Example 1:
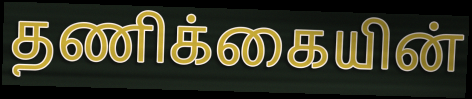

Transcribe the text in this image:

தணிக்கையின்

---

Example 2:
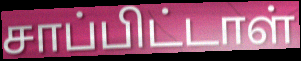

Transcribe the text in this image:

சாப்பிட்டாள்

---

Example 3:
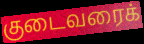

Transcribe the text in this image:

குடைவரைக்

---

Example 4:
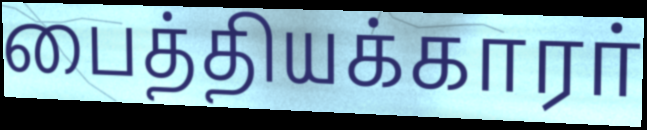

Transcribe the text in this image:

பைத்தியக்காரர்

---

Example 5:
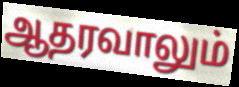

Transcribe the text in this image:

ஆதரவாலும்